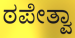
ಠಪೇತ್ವಾ